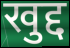
खुद्द